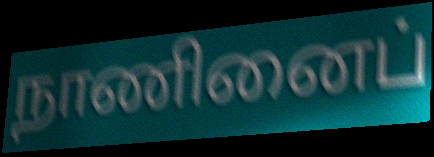
நாணினைப்